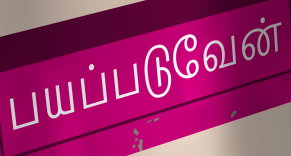
பயப்படுவேன்